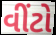
વીંટો